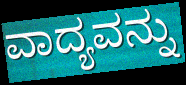
ವಾದ್ಯವನ್ನು